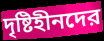
দৃষ্টিহীনদের